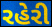
રહેરી